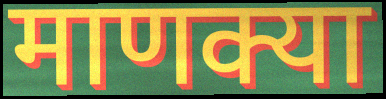
माणक्या